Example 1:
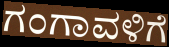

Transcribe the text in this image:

ಗಂಗಾವಳಿಗೆ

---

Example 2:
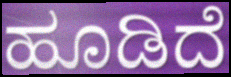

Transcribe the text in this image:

ಹೂಡಿದೆ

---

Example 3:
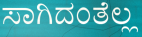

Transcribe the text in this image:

ಸಾಗಿದಂತೆಲ್ಲ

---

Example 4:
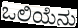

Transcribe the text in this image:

ಒಲಿಯೆನು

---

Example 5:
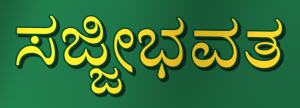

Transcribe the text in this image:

ಸಜ್ಜೀಭವತ